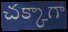
చక్కాగా